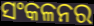
ସଂକଳନର